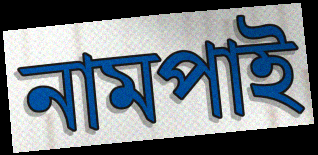
নামপাই